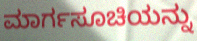
ಮಾರ್ಗಸೂಚಿಯನ್ನು